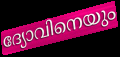
ദ്യോവിനെയും